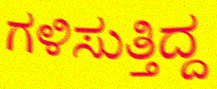
ಗಳಿಸುತ್ತಿದ್ದ